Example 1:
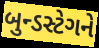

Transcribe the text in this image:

બુન્ડસ્ટેગને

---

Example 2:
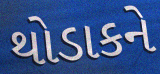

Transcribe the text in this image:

થોડાકને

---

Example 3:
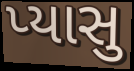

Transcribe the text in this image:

પ્યાસુ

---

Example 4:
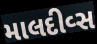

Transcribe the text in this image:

માલદીવ્સ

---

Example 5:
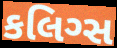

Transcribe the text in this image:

કલિગ્સ